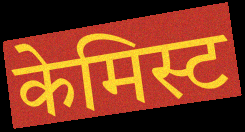
केमिस्ट